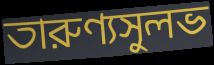
তারুণ্যসুলভ